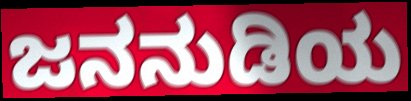
ಜನನುಡಿಯ